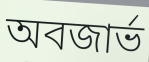
অবজার্ভ